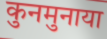
कुनमुनाया